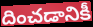
దించడానికీ